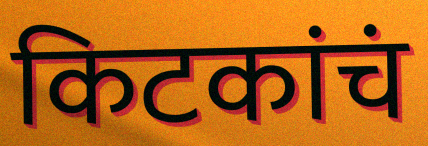
किटकांचं